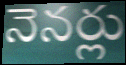
నెనర్లు